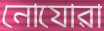
নোযোৱা